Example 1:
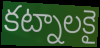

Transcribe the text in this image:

కట్నాలకై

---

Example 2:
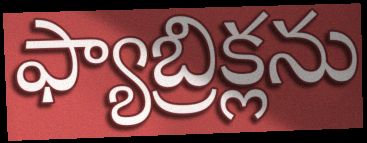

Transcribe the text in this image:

ఫ్యాబ్రిక్లను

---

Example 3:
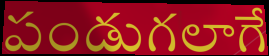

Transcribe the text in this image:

పండుగలాగే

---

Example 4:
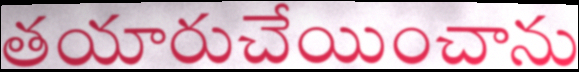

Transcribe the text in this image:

తయారుచేయించాను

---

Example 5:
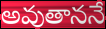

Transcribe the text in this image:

అవుతాననే